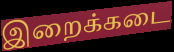
இறைக்கடை